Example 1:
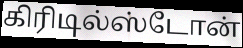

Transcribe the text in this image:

கிரிடில்ஸ்டோன்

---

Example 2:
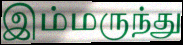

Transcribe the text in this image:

இம்மருந்து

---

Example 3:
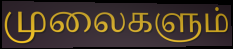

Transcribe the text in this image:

முலைகளும்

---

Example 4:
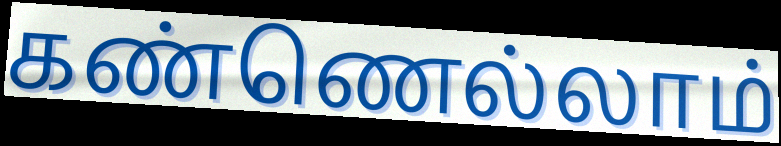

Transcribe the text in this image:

கண்ணெல்லாம்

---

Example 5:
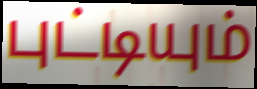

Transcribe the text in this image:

புட்டியும்